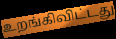
உறங்கிவிட்டது